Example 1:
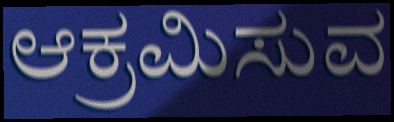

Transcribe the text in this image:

ಆಕ್ರಮಿಸುವ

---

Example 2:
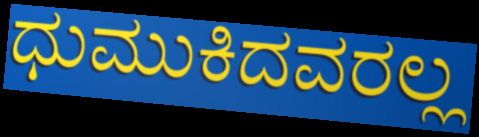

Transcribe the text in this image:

ಧುಮುಕಿದವರಲ್ಲ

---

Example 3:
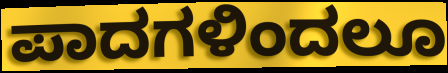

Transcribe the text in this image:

ಪಾದಗಳಿಂದಲೂ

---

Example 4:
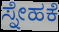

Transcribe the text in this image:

ಸ್ನೇಹಕೆ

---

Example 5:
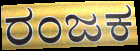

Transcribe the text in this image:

ರಂಜಕ